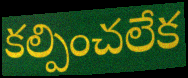
కల్పించలేక